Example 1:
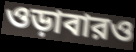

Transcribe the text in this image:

ওড়াবারও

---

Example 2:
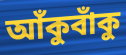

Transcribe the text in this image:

আঁকুবাঁকু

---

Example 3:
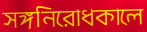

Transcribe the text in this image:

সঙ্গনিরোধকালে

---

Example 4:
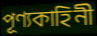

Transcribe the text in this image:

পূণ্যকাহিনী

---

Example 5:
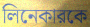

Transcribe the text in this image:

লিনেকারকে